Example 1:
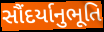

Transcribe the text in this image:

સૌંદર્યાનુભૂતિ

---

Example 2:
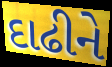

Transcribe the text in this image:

દાઢીને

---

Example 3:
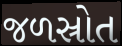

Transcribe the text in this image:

જળસ્રોત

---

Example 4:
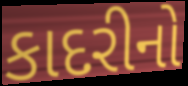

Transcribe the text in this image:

કાદરીનો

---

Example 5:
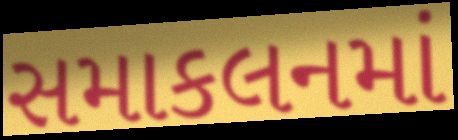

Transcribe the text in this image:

સમાકલનમાં